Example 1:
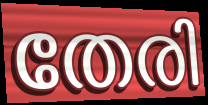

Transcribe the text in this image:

തേരി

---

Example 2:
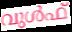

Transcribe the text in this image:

വുൾഫ്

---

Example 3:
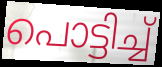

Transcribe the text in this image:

പൊട്ടിച്ച്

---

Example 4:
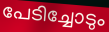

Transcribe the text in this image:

പേടിച്ചോടും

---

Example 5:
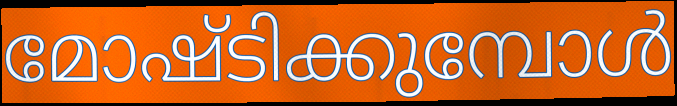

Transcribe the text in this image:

മോഷ്ടിക്കുമ്പോൾ